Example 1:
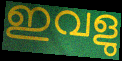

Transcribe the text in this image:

ഇവളു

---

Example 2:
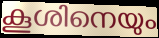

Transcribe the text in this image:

കൂശിനെയും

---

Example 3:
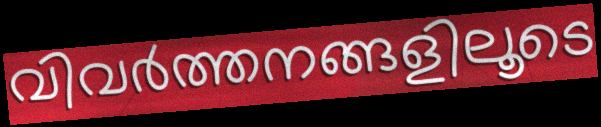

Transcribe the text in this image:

വിവർത്തനങ്ങളിലൂടെ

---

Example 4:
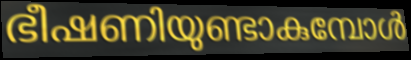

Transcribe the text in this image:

ഭീഷണിയുണ്ടാകുമ്പോൾ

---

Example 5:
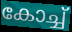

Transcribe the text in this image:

കോച്ച്